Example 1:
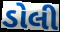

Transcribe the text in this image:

ડોલી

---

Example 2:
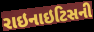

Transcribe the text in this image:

રાઇનાઇટિસની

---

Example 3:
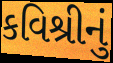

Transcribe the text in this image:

કવિશ્રીનું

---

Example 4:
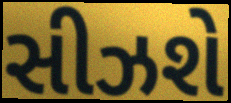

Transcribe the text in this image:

સીઝશે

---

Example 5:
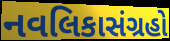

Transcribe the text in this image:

નવલિકાસંગ્રહો